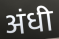
अंधी